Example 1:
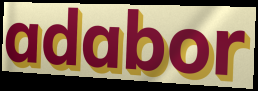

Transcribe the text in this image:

adabor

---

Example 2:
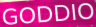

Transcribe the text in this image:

GODDIO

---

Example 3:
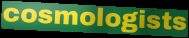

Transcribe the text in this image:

cosmologists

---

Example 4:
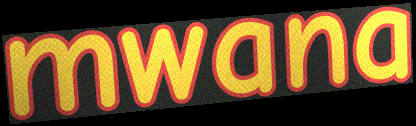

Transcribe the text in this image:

mwana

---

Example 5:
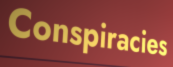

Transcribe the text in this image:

Conspiracies